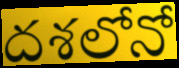
దశలోనో